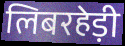
लिबरहेड़ी